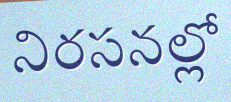
నిరసనల్లో